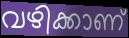
വഴിക്കാണ്